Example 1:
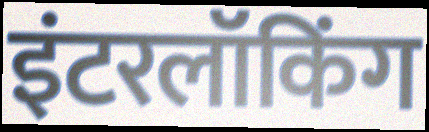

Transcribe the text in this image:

इंटरलॉकिंग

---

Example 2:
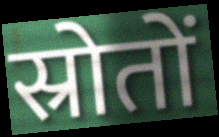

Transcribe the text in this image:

स्रोतों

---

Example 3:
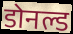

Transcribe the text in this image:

डोनल्‍ड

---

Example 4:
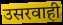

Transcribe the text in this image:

उसरवाही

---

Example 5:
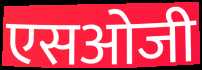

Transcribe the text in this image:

एसओजी